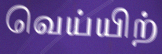
வெய்யிற்